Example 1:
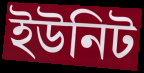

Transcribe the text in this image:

ইউনিট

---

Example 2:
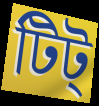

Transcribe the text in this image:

টিট্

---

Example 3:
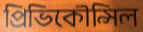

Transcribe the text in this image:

প্রিভিকৌন্সিল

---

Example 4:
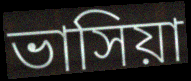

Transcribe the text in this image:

ভাসিয়া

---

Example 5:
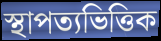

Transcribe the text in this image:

স্থাপত্যভিত্তিক